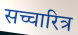
सच्चारित्र